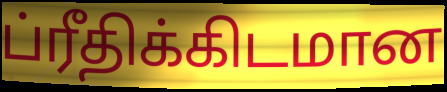
ப்ரீதிக்கிடமான